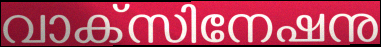
വാക്‌സിനേഷനു